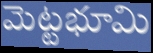
మెట్టభూమి